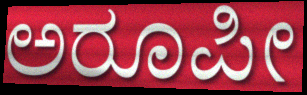
ಅರೂಪೀ